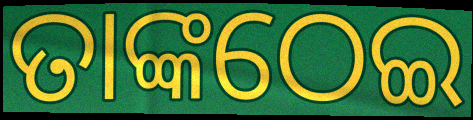
ତାଙ୍କଠେଇ